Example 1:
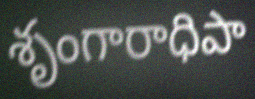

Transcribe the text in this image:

శృంగారాధిపా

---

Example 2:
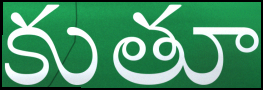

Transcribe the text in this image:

కుతూ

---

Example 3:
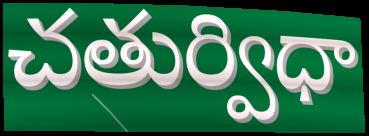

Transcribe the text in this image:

చతుర్విధా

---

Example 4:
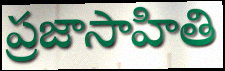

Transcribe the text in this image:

ప్రజాసాహితి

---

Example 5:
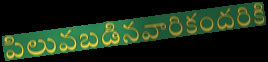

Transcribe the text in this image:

పిలువబడినవారికందరికి